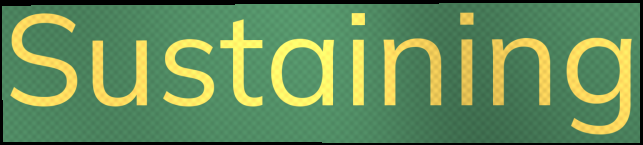
Sustaining